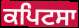
ਕਪਿਟਸਾ